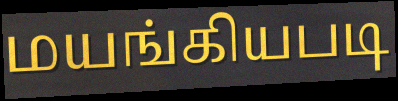
மயங்கியபடி